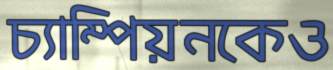
চ্যাম্পিয়নকেও